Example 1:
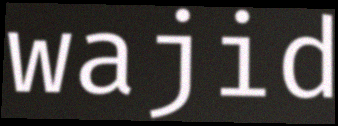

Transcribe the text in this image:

wajid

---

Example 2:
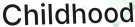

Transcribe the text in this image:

Childhood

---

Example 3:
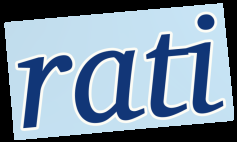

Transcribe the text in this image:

rati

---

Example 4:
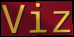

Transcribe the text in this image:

Viz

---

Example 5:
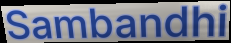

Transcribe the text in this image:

Sambandhi